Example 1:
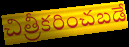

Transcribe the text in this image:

చిత్రీకరించబడే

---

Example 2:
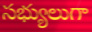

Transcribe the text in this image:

సభ్యులుగా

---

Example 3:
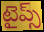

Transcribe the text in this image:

టైప్స్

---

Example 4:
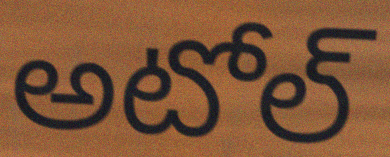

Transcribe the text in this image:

అటోల్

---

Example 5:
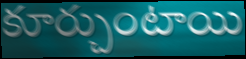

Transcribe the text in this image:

కూర్చుంటాయి